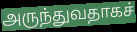
அருந்துவதாகச்